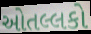
ઓતલ્લકો